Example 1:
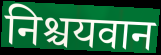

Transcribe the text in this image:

निश्चयवान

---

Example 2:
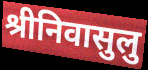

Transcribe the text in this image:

श्रीनिवासुलु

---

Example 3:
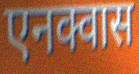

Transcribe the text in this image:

एनक्वास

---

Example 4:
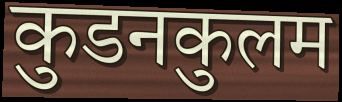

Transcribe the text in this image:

कुडनकुलम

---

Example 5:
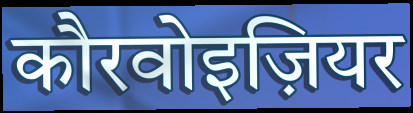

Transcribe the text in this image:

कौरवोइज़ियर